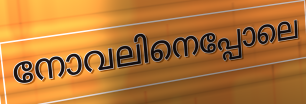
നോവലിനെപ്പോലെ